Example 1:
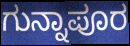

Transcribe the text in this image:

ಗುನ್ನಾಪೂರ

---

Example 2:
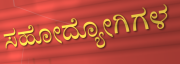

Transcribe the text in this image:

ಸಹೋದ್ಯೋಗಿಗಳ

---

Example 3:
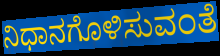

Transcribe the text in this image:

ನಿಧಾನಗೊಳಿಸುವಂತೆ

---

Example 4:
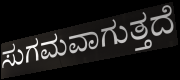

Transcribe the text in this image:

ಸುಗಮವಾಗುತ್ತದೆ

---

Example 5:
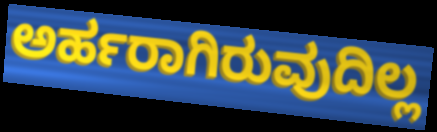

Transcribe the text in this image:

ಅರ್ಹರಾಗಿರುವುದಿಲ್ಲ